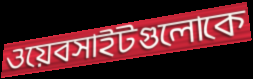
ওয়েবসাইটগুলোকে